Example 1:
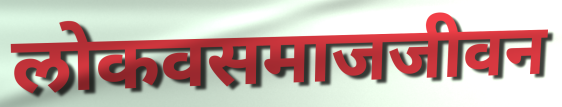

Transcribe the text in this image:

लोकवसमाजजीवन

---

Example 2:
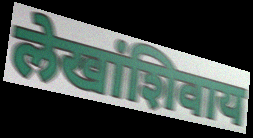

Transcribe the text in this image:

लेखांशिवाय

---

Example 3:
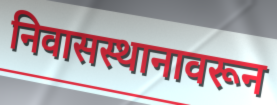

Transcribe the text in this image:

निवासस्थानावरून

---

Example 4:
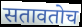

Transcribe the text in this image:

सतावतोच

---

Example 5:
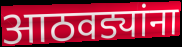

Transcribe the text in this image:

आठवड्यांना